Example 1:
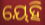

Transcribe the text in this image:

ୟେହି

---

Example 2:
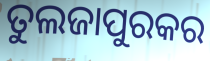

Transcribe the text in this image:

ତୁଲଜାପୁରକର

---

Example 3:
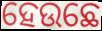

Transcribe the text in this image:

ହେଉଛେ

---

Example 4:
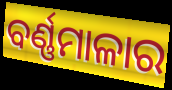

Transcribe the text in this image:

ବର୍ଣ୍ଣମାଳାର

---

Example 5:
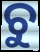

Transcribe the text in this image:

ଚୁ